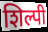
शिल्पी